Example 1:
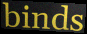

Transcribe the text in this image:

binds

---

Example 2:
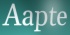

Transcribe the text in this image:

Aapte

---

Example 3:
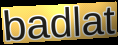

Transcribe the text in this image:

badlat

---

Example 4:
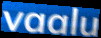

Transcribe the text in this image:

vaalu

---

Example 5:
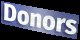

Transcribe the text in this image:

Donors